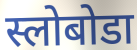
स्लोबोडा